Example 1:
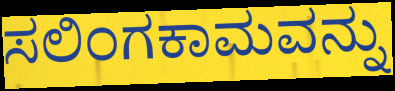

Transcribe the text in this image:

ಸಲಿಂಗಕಾಮವನ್ನು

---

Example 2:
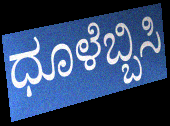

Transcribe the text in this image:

ಧೂಳೆಬ್ಬಿಸಿ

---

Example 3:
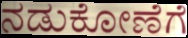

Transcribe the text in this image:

ನಡುಕೋಣೆಗೆ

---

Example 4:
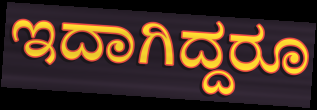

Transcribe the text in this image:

ಇದಾಗಿದ್ದರೂ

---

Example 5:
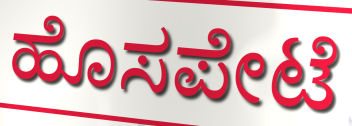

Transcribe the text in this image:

ಹೊಸಪೇಟೆ